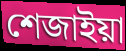
শেজাইয়া